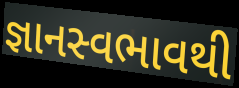
જ્ઞાનસ્વભાવથી